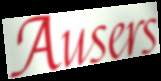
Ausers